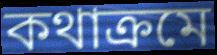
কথাক্রমে